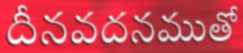
దీనవదనముతో